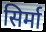
सिर्मा